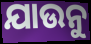
ଯାଉନୁ